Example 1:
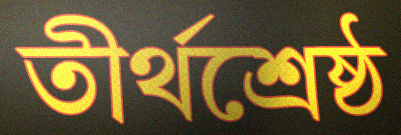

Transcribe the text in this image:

তীর্থশ্রেষ্ঠ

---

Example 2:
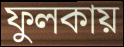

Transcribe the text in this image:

ফুলকায়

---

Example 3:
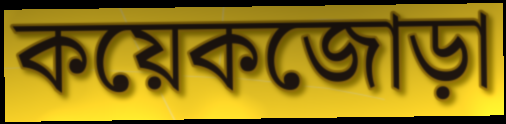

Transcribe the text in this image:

কয়েকজোড়া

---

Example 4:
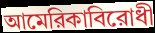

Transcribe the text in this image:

আমেরিকাবিরোধী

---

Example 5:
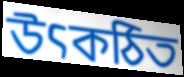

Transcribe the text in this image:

উৎকঠিত